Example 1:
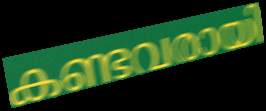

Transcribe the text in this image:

കണ്ടവരായി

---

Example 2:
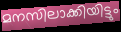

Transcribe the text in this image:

മനസിലാക്കിയിട്ടും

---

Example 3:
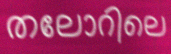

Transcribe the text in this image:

തലോറിലെ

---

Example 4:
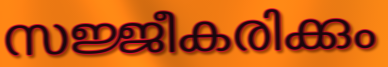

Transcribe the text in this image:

സജ്ജീകരിക്കും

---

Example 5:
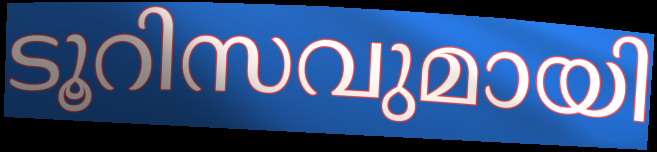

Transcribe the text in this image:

ടൂറിസവുമായി